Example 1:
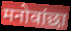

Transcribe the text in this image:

मनोवांछा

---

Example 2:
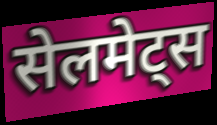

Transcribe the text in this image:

सेलमेट्स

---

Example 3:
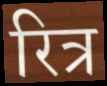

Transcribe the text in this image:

रित्र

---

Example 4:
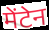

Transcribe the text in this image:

मेंटेन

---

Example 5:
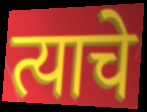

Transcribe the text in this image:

त्याचे